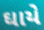
ઘાયે